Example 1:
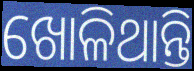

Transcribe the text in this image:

ଖୋଳିଥାନ୍ତି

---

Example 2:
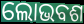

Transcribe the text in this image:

ଲୋଭବଶ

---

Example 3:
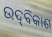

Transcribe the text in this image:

ଉଦ୍‌ବିକାଶ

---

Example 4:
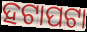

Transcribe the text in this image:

ହଟାପଟା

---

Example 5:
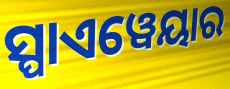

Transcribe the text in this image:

ସ୍ପାଏୱେୟାର